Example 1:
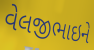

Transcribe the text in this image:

વેલજીભાઇને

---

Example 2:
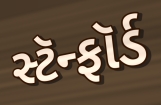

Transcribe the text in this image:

સ્ટૅન્ફૉર્ડ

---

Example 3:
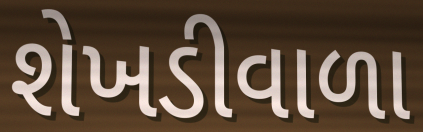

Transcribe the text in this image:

શેખડીવાળા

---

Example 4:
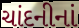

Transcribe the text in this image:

ચાંદનીનાં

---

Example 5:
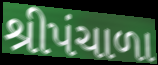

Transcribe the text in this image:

શ્રીપંચાળા